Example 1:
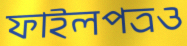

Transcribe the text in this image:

ফাইলপত্রও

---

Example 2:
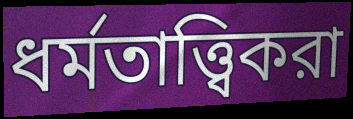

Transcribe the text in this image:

ধর্মতাত্ত্বিকরা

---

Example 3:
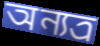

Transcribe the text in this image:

অন্যত্র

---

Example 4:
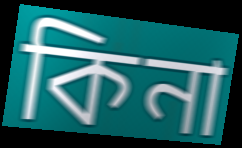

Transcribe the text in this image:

কিনা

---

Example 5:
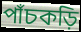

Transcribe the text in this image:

পাঁচকড়ি